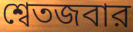
শ্বেতজবার